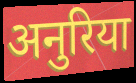
अनुरिया